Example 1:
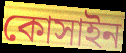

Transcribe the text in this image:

কোসাইন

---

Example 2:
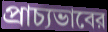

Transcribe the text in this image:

প্রাচ্যভাবের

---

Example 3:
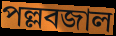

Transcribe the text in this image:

পল্লবজাল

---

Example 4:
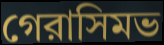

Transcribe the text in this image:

গেরাসিমভ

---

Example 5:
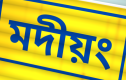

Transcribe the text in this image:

মদীয়ং